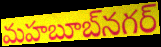
మహబూబ్‌నగర్